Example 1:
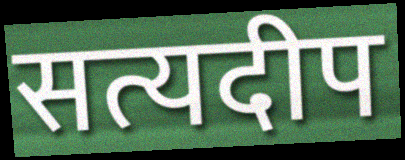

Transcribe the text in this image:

सत्यदीप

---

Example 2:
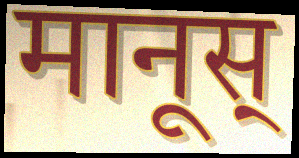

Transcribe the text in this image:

मानूस्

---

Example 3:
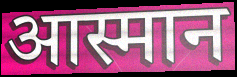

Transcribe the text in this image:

आस्मान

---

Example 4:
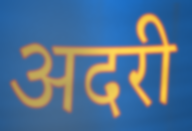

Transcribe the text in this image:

अदरी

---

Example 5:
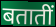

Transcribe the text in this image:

बतातीं